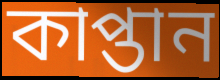
কাপ্তান